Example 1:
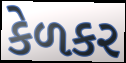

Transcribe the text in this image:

કેળકર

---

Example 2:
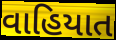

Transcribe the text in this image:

વાહિયાત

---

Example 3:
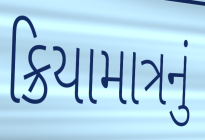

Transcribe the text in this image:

ક્રિયામાત્રનું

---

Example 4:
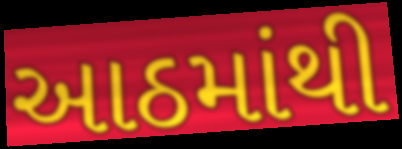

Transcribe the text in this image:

આઠમાંથી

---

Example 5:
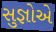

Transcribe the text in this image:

સુજ્ઞોએ